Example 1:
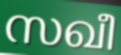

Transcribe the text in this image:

സഖീ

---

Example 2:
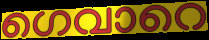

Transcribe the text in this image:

ഗെവാറെ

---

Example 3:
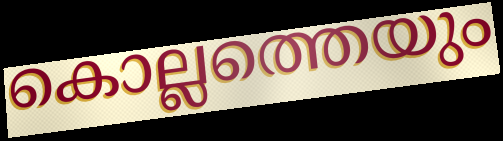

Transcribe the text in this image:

കൊല്ലത്തെയും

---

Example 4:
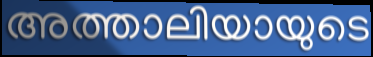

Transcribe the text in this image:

അത്താലിയായുടെ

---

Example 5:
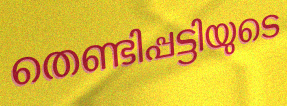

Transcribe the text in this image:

തെണ്ടിപ്പട്ടിയുടെ